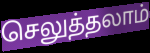
செலுத்தலாம்